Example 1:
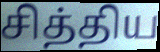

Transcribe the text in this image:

சித்திய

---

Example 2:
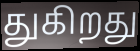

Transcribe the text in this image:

துகிறது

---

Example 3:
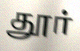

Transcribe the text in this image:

தூர்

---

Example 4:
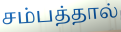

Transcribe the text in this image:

சம்பத்தால்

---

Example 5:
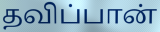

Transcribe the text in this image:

தவிப்பான்